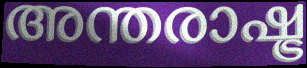
അന്തരാഷ്ട്ര